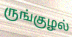
ருங்குழல்